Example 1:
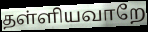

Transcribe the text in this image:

தள்ளியவாறே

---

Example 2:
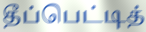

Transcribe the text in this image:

தீப்பெட்டித்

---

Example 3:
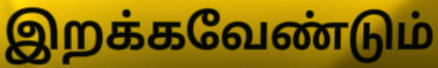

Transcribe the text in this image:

இறக்கவேண்டும்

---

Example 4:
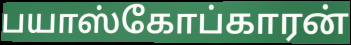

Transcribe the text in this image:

பயாஸ்கோப்காரன்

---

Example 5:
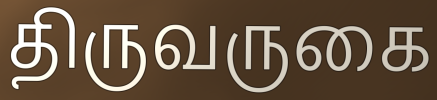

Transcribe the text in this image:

திருவருகை